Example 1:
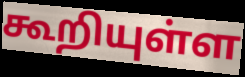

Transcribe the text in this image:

கூறியுள்ள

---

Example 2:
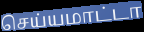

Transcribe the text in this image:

செய்யமாட்டா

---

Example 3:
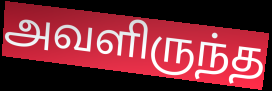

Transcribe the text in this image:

அவளிருந்த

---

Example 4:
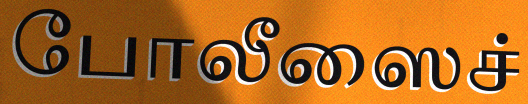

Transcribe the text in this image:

போலீஸைச்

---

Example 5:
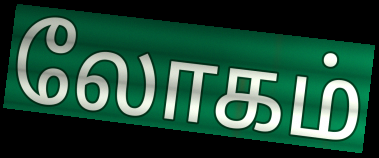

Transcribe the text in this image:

லோகம்